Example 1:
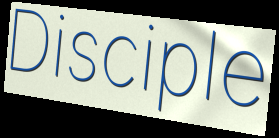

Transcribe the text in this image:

Disciple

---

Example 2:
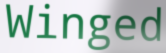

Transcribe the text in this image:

Winged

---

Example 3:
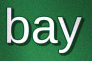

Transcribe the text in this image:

bay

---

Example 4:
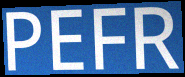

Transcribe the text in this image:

PEFR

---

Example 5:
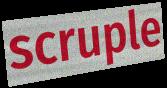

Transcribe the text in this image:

scruple